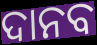
ଦାନବ